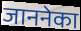
जाननेका